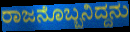
ರಾಜನೊಬ್ಬನಿದ್ದನು